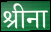
श्रीना